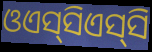
ଓଏସ୍‌ସିଏସ୍‌ସି